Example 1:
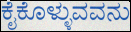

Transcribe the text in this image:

ಕೈಕೊಳ್ಳುವವನು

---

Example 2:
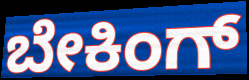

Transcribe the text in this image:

ಬೇಕಿಂಗ್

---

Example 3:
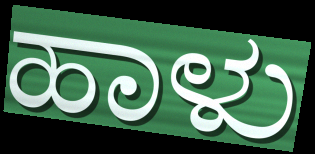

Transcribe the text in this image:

ಹಾಳು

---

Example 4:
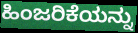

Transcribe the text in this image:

ಹಿಂಜರಿಕೆಯನ್ನು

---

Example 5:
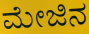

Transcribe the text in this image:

ಮೇಜಿನ